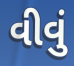
વીવું